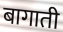
बागाती